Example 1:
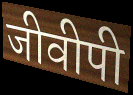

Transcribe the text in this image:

जीवीपी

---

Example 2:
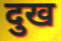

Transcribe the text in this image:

दुख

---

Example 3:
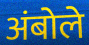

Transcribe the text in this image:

अंबोले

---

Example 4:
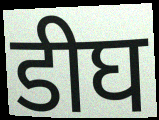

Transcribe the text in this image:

डीघ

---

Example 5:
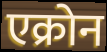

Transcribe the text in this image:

एक्रोन